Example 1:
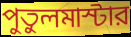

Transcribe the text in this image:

পুতুলমাস্টার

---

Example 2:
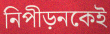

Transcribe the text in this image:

নিপীড়নকেই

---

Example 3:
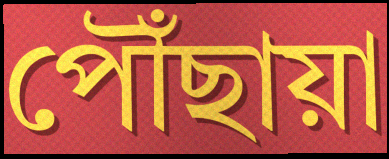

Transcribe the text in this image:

পৌঁছায়া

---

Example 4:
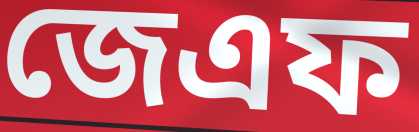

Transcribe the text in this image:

জেএফ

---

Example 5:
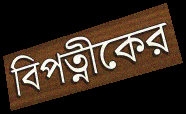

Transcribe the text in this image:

বিপত্নীকের